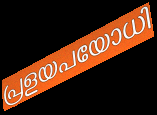
പ്രളയപയോധി